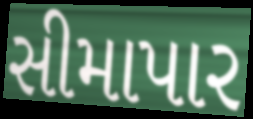
સીમાપાર